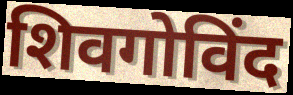
शिवगोविंद